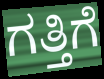
ಗತ್ತಿಗೆ